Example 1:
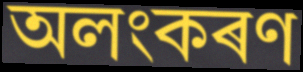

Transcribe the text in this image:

অলংকৰণ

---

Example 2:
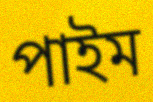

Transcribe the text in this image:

পাইম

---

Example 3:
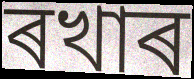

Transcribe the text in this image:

ৰখাৰ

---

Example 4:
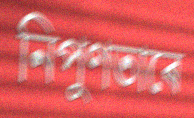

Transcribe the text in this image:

নিপুণতাৰে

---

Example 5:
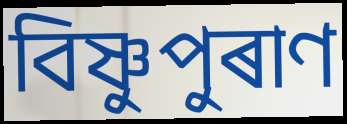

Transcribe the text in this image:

বিষ্ণুপুৰাণ